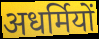
अधर्मियों